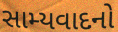
સામ્યવાદનો